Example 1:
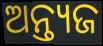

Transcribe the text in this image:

ଅନ୍ତ୍ୟଜ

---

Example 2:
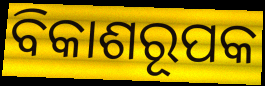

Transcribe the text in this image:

ବିକାଶରୂପକ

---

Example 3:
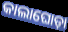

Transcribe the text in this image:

କାଲାଘୋଡ଼ା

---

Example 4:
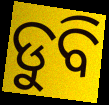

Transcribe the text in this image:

ଡୁବି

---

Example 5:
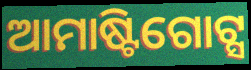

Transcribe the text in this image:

ଆମାଷ୍ଟିଗୋଟ୍ସ